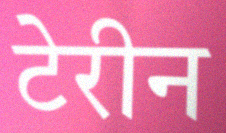
टेरीन